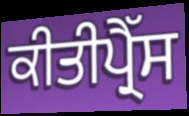
ਕੀਤੀਪ੍ਰੈੱਸ